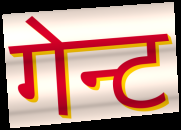
गेन्ट